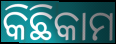
କିଛିକାମ